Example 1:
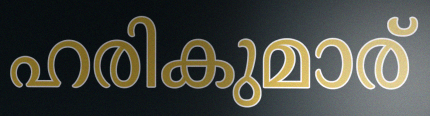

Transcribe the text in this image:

ഹരികുമാര്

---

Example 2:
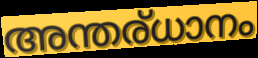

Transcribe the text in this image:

അന്തര്ധാനം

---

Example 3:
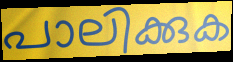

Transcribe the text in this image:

പാലിക്കുക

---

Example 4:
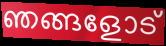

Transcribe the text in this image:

ഞങ്ങളോട്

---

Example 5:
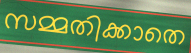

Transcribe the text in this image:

സമ്മതിക്കാതെ